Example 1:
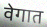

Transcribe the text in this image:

वेगात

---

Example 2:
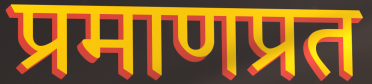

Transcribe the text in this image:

प्रमाणप्रत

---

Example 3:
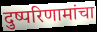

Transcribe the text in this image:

दुष्परिणामांचा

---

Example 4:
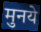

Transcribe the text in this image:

मुनये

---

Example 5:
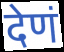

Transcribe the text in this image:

देणं